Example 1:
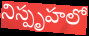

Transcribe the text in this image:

నిస్పృహలో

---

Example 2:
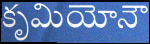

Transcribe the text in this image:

కృమియోనౌ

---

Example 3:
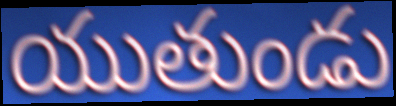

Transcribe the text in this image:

యుతుండు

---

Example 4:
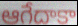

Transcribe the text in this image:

ఆగేదాకా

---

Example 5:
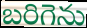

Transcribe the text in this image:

బరిగెను